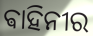
ଵାହିନୀର